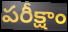
పరీక్షాం